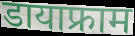
डायाफ्राम